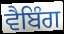
ਵੈਬਿੰਗ